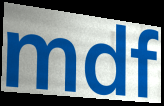
mdf